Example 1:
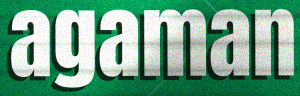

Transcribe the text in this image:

agaman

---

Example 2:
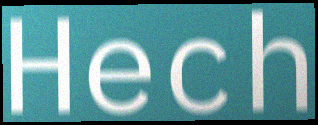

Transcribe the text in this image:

Hech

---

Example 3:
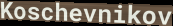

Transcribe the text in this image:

Koschevnikov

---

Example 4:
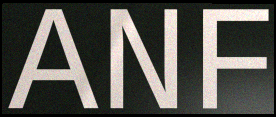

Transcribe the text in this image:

ANF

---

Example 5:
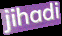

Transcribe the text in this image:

jihadi